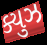
ક્યુઝ